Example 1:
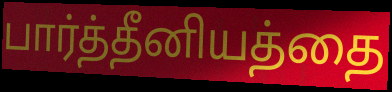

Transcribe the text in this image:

பார்த்தீனியத்தை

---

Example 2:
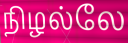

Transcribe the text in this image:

நிழல்லே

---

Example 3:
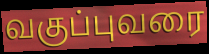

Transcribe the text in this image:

வகுப்புவரை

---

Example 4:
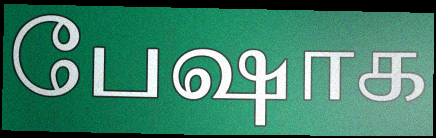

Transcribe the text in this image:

பேஷாக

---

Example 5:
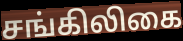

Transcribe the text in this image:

சங்கிலிகை